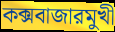
কক্সবাজারমুখী